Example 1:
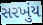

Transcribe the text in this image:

સરખુંય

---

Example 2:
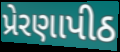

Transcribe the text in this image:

પ્રેરણાપીઠ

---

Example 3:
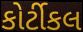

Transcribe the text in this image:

કોર્ટીકલ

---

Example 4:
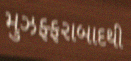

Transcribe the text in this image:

મુઝફ્ફરાબાદથી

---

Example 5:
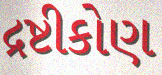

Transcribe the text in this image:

દ્રષ્ટીકોણ